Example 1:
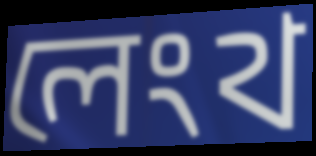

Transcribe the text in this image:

লেংথ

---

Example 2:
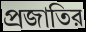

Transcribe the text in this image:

প্রজাতির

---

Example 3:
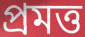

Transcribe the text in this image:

প্রমত্ত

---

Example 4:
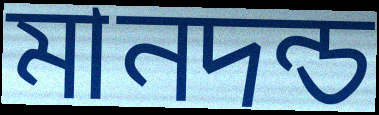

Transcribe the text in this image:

মানদন্ড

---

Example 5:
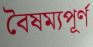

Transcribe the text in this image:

বৈষম্যপূর্ণ